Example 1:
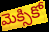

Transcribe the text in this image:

మెక్సికో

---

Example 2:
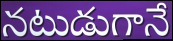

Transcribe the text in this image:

నటుడుగానే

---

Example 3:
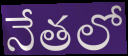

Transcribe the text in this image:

నేతలో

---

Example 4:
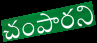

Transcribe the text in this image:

చంపారని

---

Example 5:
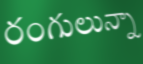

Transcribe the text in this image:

రంగులున్నా